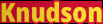
Knudson